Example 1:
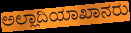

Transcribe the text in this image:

ಅಲ್ಲಾದಿಯಾಖಾನರು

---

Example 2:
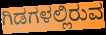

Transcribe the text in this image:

ಗಿಡಗಳಲ್ಲಿರುವ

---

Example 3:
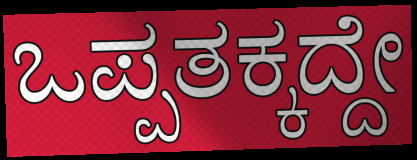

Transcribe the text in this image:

ಒಪ್ಪತಕ್ಕದ್ದೇ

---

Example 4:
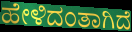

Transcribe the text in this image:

ಹೇಳಿದಂತಾಗಿದೆ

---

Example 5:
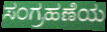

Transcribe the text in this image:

ಸಂಗ್ರಹಣೆಯ